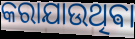
କରାଯାଉଥିଵା